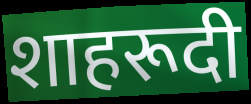
शाहरूदी